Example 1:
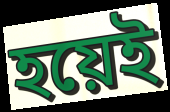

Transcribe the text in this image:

হয়েই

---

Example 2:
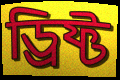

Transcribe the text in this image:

ড্রিফ্ট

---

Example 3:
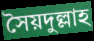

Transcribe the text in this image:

সৈয়দুল্লাহ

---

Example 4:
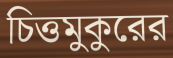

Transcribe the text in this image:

চিত্তমুকুরের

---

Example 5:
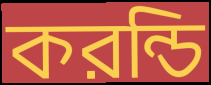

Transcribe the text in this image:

করন্ডি